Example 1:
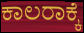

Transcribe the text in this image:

ಕಾಲರಾಕ್ಕೆ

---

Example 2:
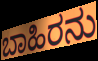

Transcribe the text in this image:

ಬಾಹಿರನು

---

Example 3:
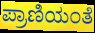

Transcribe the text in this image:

ಪ್ರಾಣಿಯಂತೆ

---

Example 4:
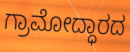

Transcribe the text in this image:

ಗ್ರಾಮೋದ್ಧಾರದ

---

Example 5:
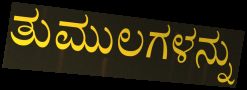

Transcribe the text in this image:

ತುಮುಲಗಳನ್ನು